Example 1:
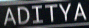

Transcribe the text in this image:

ADITYA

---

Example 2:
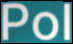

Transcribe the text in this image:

Pol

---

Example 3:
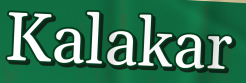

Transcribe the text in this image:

Kalakar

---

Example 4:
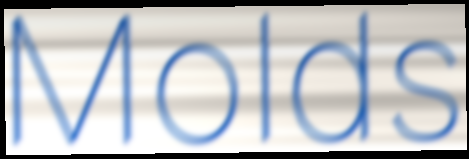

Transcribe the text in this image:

Molds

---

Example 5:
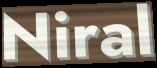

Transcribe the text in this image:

Niral